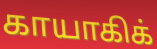
காயாகிக்